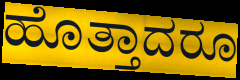
ಹೊತ್ತಾದರೂ